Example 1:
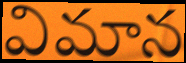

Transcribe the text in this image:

విమాన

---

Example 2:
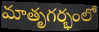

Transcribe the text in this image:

మాతృగర్భంలో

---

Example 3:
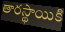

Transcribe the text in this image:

తారస్థాయికి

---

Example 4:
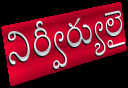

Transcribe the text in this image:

నిర్వీర్యులై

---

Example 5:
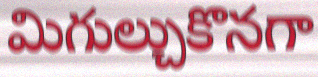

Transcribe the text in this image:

మిగుల్చుకొనగా